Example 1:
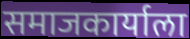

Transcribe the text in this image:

समाजकार्याला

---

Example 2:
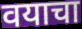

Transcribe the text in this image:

वयाचा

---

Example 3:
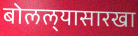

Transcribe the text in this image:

बोलल्यासारखा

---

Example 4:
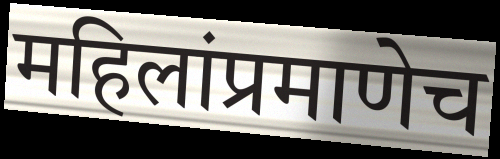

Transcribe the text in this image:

महिलांप्रमाणेच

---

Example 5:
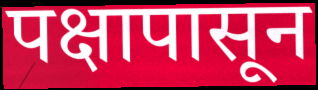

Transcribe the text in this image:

पक्षापासून